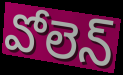
వోలెన్